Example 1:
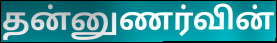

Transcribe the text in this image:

தன்னுணர்வின்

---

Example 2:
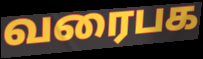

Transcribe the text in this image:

வரைபக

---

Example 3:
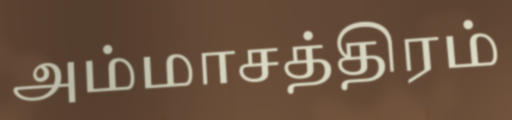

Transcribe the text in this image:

அம்மாசத்திரம்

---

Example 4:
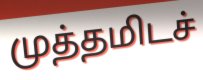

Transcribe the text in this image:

முத்தமிடச்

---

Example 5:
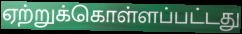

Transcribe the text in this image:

ஏற்றுக்கொள்ளப்பட்டது